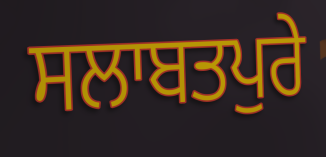
ਸਲਾਬਤਪੁਰੇ